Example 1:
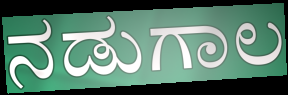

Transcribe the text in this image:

ನಡುಗಾಲ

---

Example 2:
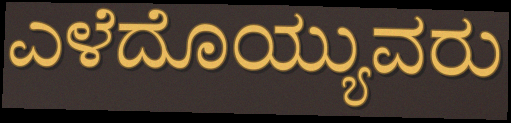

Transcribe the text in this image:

ಎಳೆದೊಯ್ಯುವರು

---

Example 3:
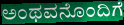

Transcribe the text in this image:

ಅಂಥವನೊಂದಿಗೆ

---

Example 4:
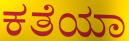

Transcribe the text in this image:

ಕತೆಯಾ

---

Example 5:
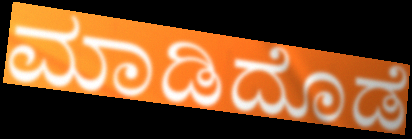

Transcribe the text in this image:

ಮಾಡಿದೊಡೆ